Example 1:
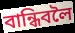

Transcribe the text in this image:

বান্ধিবলৈ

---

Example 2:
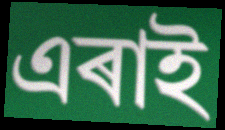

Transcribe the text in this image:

এৰাই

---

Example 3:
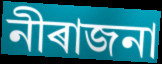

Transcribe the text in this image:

নীৰাজনা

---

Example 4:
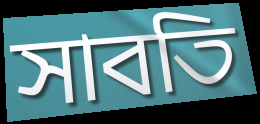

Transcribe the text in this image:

সাবতি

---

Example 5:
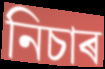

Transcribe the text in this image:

নিচাৰ